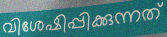
വിശേഷിപ്പിക്കുന്നത്